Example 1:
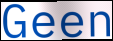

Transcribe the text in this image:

Geen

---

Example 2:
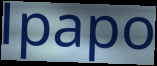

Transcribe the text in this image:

Ipapo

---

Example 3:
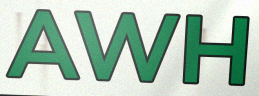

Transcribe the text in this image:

AWH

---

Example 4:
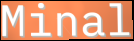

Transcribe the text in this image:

Minal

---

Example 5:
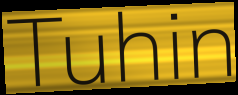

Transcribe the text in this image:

Tuhin